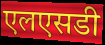
एलएसडी